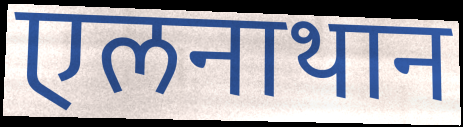
एलनाथान